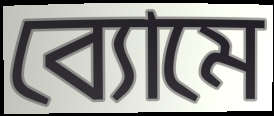
ব্যোমে